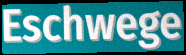
Eschwege